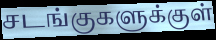
சடங்குகளுக்குள்